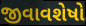
જીવાવશેષો